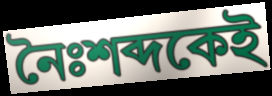
নৈঃশব্দকেই